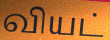
வியட்